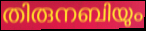
തിരുനബിയും